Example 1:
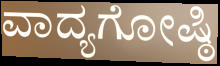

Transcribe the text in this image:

ವಾದ್ಯಗೋಷ್ಠಿ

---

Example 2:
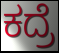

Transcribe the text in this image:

ಕದ್ರೆ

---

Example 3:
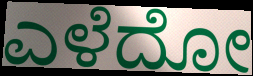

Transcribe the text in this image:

ಎಳೆದೋ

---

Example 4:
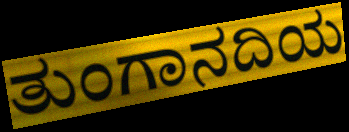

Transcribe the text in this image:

ತುಂಗಾನದಿಯ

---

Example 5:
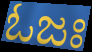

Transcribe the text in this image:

ಓಜಃ